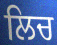
ਲਿਚ